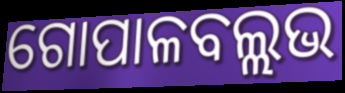
ଗୋପାଳବଲ୍ଲଭ